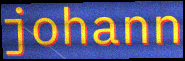
johann